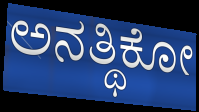
ಅನತ್ಥಿಕೋ